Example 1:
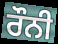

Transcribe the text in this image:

ਰੌਨੀ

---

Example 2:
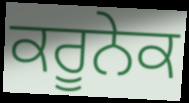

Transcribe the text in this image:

ਕਰੂਨੇਕ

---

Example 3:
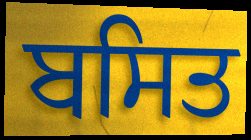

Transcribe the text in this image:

ਬਸਿਤ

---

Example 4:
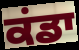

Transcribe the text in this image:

ਕਂਡਾ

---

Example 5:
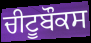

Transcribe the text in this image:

ਚੀਟੂਬੌਕਸ